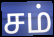
சம்